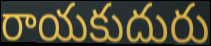
రాయకుదురు